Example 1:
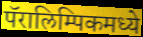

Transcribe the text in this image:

पॅरालिम्पिकमध्ये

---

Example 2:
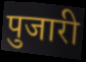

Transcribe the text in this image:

पुजारी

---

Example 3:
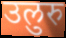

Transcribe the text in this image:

उलुरु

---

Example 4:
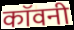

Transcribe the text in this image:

कॉवनी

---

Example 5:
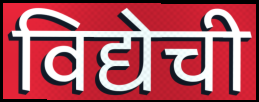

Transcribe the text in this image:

विद्येची